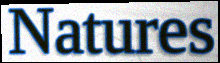
Natures